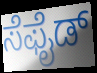
ಸೆಫೈಡ್